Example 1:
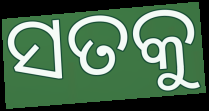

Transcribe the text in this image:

ସତକୁ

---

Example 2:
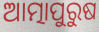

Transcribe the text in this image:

ଆତ୍ମାପୁରୁଷ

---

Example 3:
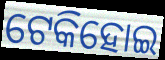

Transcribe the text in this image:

ଟେକିହୋଇ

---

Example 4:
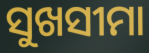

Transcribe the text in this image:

ସୁଖସୀମା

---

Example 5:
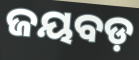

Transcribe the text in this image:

ଜୟବଡ଼